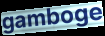
gamboge